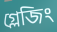
গ্লেজিং